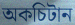
অকচিটান